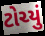
ટોચ્યું